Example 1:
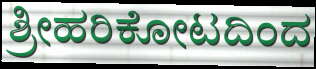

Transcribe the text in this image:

ಶ್ರೀಹರಿಕೋಟದಿಂದ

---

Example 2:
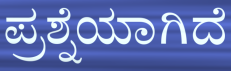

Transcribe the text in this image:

ಪ್ರಶ್ನೆಯಾಗಿದೆ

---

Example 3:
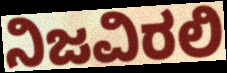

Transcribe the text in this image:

ನಿಜವಿರಲಿ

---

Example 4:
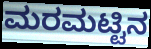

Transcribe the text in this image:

ಮರಮಟ್ಟಿನ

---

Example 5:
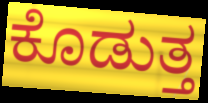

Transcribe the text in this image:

ಕೊಡುತ್ತ